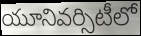
యూనివర్సిటీలో